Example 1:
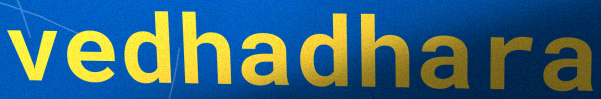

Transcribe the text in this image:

vedhadhara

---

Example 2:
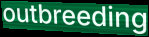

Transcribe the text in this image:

outbreeding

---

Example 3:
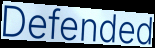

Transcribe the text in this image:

Defended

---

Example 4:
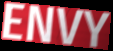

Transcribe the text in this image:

ENVY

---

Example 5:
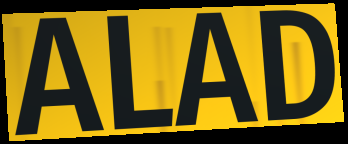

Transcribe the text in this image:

ALAD